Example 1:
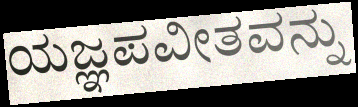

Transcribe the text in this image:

ಯಜ್ಞಪವೀತವನ್ನು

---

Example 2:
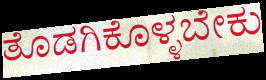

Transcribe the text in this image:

ತೊಡಗಿಕೊಳ್ಳಬೇಕು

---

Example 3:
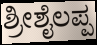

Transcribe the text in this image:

ಶ್ರೀಶೈಲಪ್ಪ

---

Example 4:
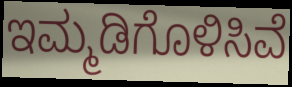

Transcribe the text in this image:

ಇಮ್ಮಡಿಗೊಳಿಸಿವೆ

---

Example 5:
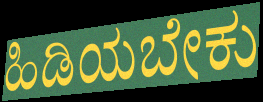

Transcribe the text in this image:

ಹಿಡಿಯಬೇಕು